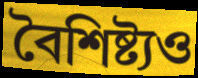
বৈশিষ্ট্যও